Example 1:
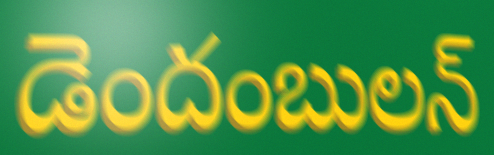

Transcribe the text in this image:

డెందంబులన్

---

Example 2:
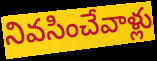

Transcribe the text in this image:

నివసించేవాళ్లు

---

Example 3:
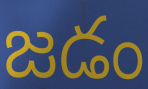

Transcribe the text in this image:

జడం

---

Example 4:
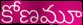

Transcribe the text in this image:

కోణమూ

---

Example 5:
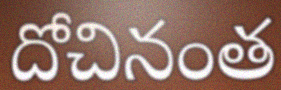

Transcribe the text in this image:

దోచినంత